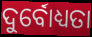
ଦୁର୍ବୋଧ୍ୟତା